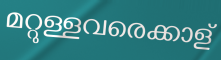
മറ്റുള്ളവരെക്കാള്